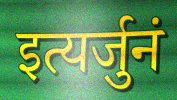
इत्यर्जुनं